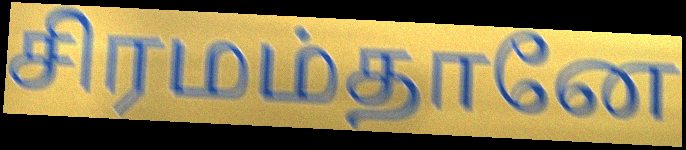
சிரமம்தானே